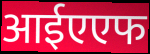
आईएएफ